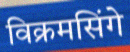
विक्रमसिंगे